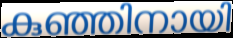
കുഞ്ഞിനായി